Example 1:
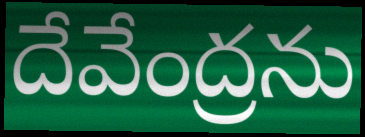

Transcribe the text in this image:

దేవేంద్రను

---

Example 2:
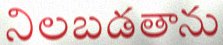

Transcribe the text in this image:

నిలబడతాను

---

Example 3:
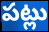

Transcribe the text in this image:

పట్లు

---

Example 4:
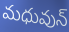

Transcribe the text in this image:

మధువున్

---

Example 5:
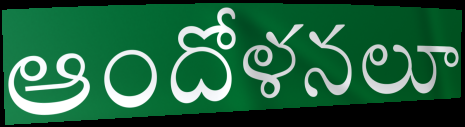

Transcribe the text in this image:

ఆందోళనలూ